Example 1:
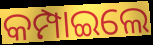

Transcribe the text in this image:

କମ୍ପାଇଲେ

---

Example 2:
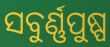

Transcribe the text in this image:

ସବୁର୍ଣ୍ଣପୁଷ୍ପ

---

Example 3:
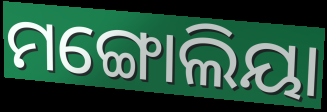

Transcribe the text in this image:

ମଙ୍ଗୋଲିୟା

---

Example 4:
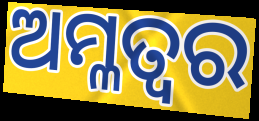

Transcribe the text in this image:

ଅମ୍ଳତ୍ଵର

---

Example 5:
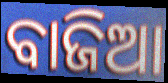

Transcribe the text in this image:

ବାଜିଆ